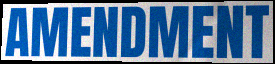
AMENDMENT